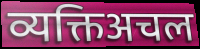
व्यक्तिअचल